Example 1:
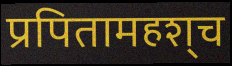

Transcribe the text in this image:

प्रपितामहश्च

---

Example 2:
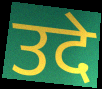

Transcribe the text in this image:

उदे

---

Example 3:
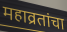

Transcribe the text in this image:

महाव्रतांचा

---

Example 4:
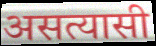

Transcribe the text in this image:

असत्यासी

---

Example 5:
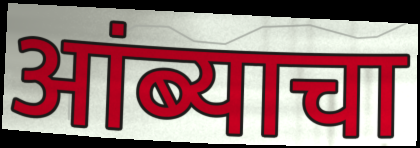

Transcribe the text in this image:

आंब्याचा